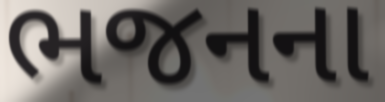
ભજનના